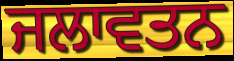
ਜਲਾਵਤਨ